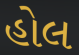
હોલ